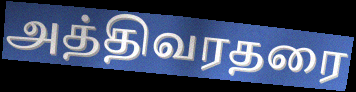
அத்திவரதரை